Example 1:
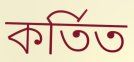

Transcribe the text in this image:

কৰ্তিত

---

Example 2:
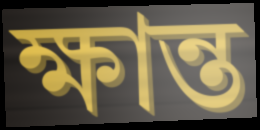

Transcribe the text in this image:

ক্ষান্ত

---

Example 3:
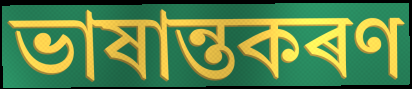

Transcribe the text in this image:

ভাষান্তকৰণ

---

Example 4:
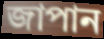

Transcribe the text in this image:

জাপান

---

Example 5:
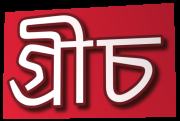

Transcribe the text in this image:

গ্ৰীচ